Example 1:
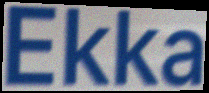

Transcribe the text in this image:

Ekka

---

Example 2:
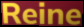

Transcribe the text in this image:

Reine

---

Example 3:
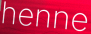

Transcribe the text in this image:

henne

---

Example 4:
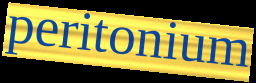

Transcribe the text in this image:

peritonium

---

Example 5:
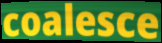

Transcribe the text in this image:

coalesce